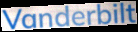
Vanderbilt